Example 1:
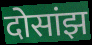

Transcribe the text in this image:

दोसांझ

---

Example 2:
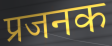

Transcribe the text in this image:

प्रजनक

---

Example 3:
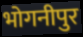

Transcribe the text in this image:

भोगनीपुर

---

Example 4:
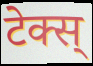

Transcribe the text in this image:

टेक्स्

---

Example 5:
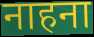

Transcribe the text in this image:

नाहना